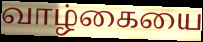
வாழ்கையை